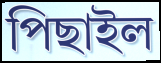
পিছাইল